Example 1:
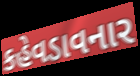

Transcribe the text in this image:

કહેવડાવનાર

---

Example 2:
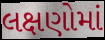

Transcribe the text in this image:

લક્ષણોમાં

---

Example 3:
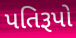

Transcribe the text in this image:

પતિરૂપો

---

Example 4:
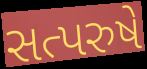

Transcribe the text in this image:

સત્પરુષે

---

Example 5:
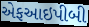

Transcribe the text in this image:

એફઆઇપીબી